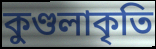
কুণ্ডলাকৃতি